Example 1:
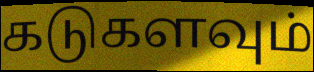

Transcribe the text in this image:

கடுகளவும்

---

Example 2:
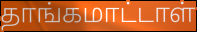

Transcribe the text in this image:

தாங்கமாட்டாள்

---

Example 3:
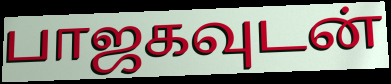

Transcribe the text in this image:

பாஜகவுடன்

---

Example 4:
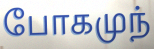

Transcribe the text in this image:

போகமுந்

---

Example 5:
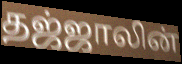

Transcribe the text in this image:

தஜ்ஜாலின்